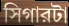
সিগারটা